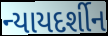
ન્યાયદર્શીન